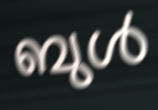
ബുൾ